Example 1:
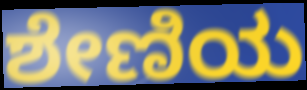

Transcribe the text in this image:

ಶೇಣಿಯ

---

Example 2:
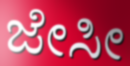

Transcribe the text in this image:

ಜೇಸೀ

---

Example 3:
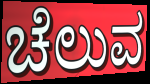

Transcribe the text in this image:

ಚೆಲುವ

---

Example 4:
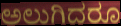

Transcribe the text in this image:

ಅಲುಗಿದರೂ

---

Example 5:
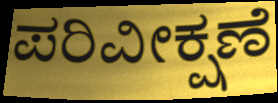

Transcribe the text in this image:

ಪರಿವೀಕ್ಷಣೆ